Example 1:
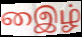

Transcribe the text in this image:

இைழ்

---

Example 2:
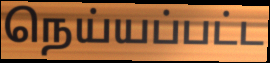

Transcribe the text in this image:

நெய்யப்பட்ட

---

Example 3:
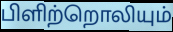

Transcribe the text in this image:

பிளிற்றொலியும்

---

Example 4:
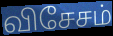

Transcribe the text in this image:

விசேசம்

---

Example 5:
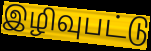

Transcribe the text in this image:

இழிவுபட்டு